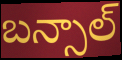
బన్సాల్